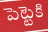
పెట్టెకి